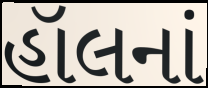
હૉલનાં